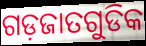
ଗଡ଼ଜାତଗୁଡିକ